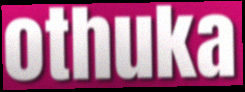
othuka